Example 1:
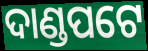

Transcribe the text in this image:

ଦାଣ୍ଡପଟେ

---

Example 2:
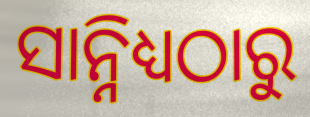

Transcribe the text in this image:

ସାନ୍ନିଧ୍ୟଠାରୁ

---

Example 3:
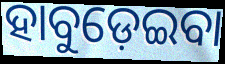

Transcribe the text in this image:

ହାବୁଡ଼େଇବା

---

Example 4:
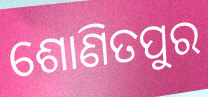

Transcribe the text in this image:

ଶୋଣିତପୁର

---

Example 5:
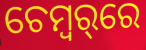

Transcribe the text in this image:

ଚେମ୍ବର୍‌ରେ